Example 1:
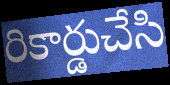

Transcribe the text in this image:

రికార్డుచేసి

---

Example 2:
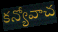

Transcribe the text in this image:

కన్యోవాచ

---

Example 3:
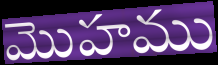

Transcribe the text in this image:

మొహము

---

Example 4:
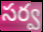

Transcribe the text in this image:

సర్వ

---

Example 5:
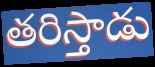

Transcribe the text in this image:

తరిస్తాడు